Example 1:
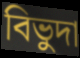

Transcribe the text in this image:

বিভুদা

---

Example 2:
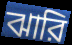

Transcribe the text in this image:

ঝারি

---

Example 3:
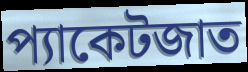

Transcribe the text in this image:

প্যাকেটজাত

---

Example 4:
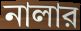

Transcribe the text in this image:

নালার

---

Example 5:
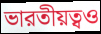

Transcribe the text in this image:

ভারতীয়ত্বও